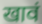
खावं